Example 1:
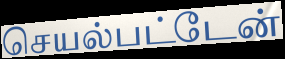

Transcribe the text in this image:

செயல்பட்டேன்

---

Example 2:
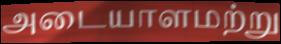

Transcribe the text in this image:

அடையாளமற்று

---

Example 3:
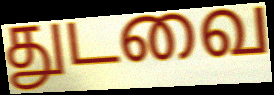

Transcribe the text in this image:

துடவை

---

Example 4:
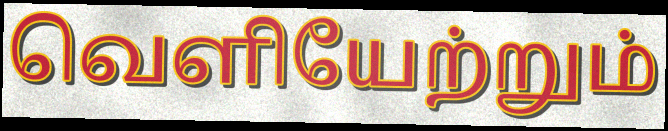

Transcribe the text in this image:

வெளியேற்றும்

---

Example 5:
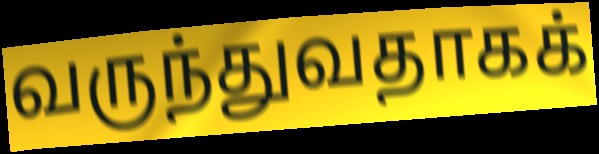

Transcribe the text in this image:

வருந்துவதாகக்